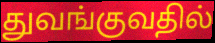
துவங்குவதில்